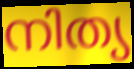
നിത്യ